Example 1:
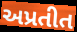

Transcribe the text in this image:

અપ્રતીત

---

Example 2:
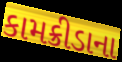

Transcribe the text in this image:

કામક્રીડાના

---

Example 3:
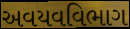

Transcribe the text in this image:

અવયવવિભાગ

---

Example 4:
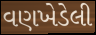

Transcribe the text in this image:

વણખેડેલી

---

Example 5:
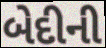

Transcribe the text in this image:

બેદીની